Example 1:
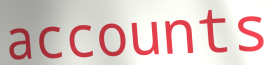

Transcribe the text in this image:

accounts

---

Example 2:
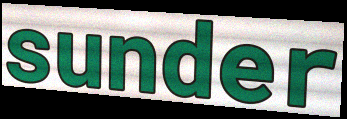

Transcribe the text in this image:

sunder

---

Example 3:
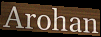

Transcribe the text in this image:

Arohan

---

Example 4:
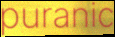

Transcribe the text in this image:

puranic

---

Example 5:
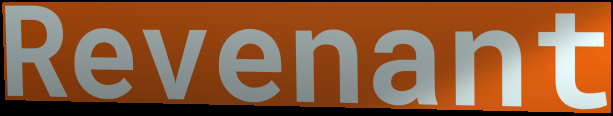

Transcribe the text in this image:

Revenant